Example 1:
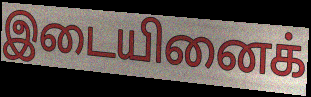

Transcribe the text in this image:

இடையினைக்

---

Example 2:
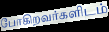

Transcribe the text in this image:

போகிறவர்களிடம்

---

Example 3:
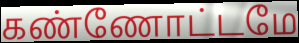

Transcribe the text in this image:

கண்ணோட்டமே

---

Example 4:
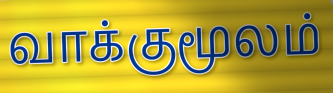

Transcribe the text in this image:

வாக்குமூலம்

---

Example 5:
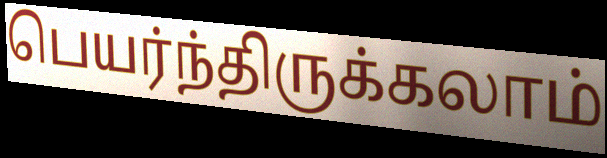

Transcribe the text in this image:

பெயர்ந்திருக்கலாம்